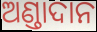
ଅଣ୍ଡାଦାନ